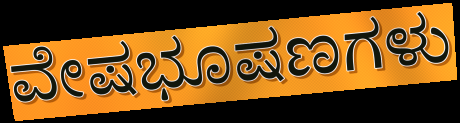
ವೇಷಭೂಷಣಗಳು